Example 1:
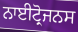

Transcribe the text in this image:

ਨਾਈਟ੍ਰੋਜਨਸ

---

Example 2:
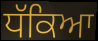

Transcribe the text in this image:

ਧੱਕਿਆ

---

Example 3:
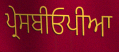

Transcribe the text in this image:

ਪ੍ਰੇਸਬੀਓਪੀਆ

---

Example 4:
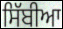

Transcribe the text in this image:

ਸਿੱਬੀਆ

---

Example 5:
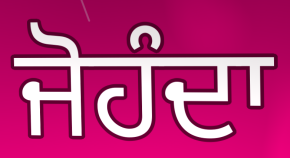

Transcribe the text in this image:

ਜੋਹੰਦਾ